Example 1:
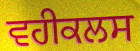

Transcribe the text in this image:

ਵਹੀਕਲਸ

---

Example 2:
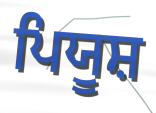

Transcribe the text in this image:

ਪਿਯੂਸ਼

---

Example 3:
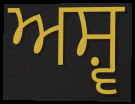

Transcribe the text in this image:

ਅਸ਼੍ਵ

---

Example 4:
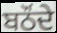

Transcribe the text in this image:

ਬਠੌਂਦੇ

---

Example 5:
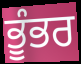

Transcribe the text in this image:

ਭੂੰਭਰ